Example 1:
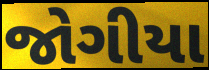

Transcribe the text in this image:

જોગીયા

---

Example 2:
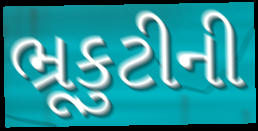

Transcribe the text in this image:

ભ્રૂકુટીની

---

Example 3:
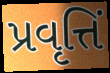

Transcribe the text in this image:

પ્રવૃત્તિં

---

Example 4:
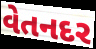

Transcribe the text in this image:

વેતનદર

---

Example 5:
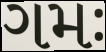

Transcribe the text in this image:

ગમઃ